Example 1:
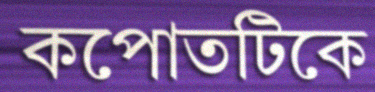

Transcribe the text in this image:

কপোতটিকে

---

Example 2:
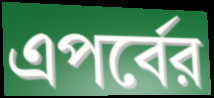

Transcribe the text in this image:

এপর্বের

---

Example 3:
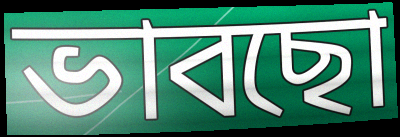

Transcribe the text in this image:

ভাবছো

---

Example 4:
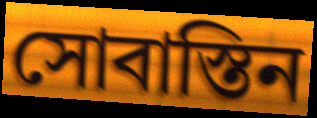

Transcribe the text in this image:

সোবাস্তিন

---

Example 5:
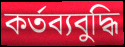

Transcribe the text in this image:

কর্তব্যবুদ্ধি